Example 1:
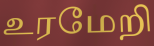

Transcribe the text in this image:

உரமேறி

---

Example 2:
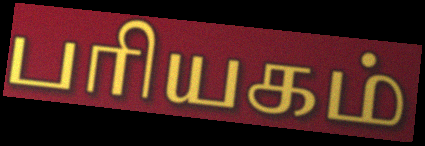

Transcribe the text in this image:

பரியகம்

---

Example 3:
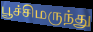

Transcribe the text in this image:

பூச்சிமருந்து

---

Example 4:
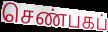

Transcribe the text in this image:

செண்பகப்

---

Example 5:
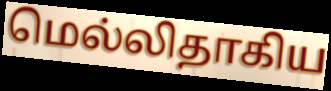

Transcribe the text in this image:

மெல்லிதாகிய